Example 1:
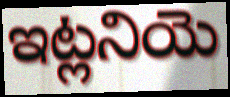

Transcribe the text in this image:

ఇట్లనియె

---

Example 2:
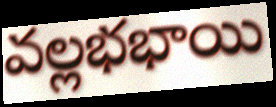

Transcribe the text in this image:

వల్లభభాయి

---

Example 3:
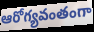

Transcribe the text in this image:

ఆరోగ్యవంతంగా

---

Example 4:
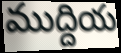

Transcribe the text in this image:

ముద్దియ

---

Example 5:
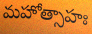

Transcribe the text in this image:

మహోత్సాహః